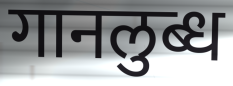
गानलुब्ध